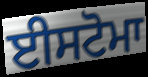
ਈਸਟੋਮਾ